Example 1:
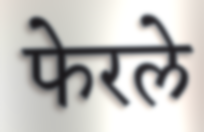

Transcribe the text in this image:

फेरले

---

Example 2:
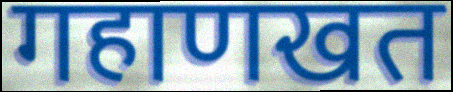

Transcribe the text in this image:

गहाणखत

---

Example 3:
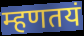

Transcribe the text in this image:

म्हणतयं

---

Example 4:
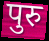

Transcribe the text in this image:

पुरु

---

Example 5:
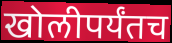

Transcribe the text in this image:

खोलीपर्यंतच